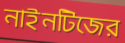
নাইনটিজের